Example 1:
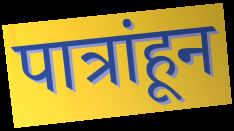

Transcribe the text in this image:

पात्रांहून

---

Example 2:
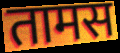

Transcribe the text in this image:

तामस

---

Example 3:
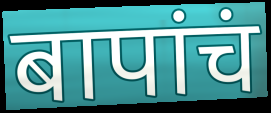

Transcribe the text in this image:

बापांचं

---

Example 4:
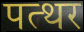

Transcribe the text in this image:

पत्थर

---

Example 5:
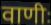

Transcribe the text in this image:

वाणीः